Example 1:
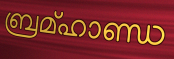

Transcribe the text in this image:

ബ്രമ്ഹാണ്ഡ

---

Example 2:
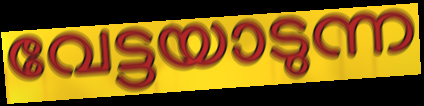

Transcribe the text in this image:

വേട്ടയാടുന്ന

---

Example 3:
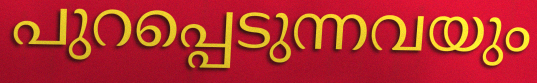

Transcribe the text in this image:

പുറപ്പെടുന്നവയും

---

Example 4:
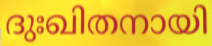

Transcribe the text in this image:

ദുഃഖിതനായി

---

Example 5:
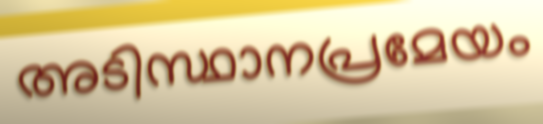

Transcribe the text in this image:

അടിസ്ഥാനപ്രമേയം